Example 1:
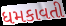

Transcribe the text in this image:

ધમકાવતી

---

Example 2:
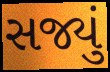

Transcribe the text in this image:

સજ્યું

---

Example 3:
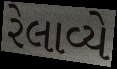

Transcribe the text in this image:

રેલાવ્યે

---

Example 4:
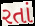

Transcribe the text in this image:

રતાં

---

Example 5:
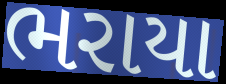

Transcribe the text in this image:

ભરાયા